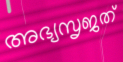
അഭ്യസൃജത്